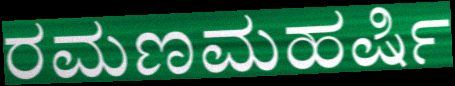
ರಮಣಮಹರ್ಷಿ